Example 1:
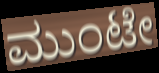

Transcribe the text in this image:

ಮುಂಟೇ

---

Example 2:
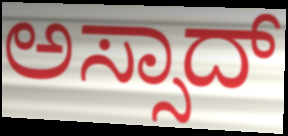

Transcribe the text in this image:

ಅಸ್ಸಾದ್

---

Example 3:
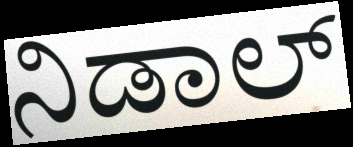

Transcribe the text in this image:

ನಿಡಾಲ್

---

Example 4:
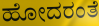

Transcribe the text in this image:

ಹೋದರಂತೆ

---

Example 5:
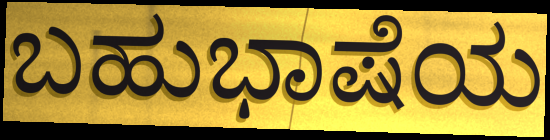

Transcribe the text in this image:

ಬಹುಭಾಷೆಯ